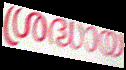
ശ്രദ്ധായ